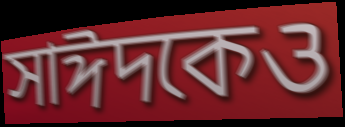
সাঈদকেও